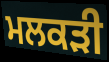
ਮਲਕੜੀ